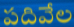
పదివేల